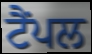
ਟੈਂਪਲ